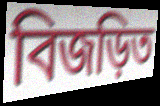
বিজড়িত